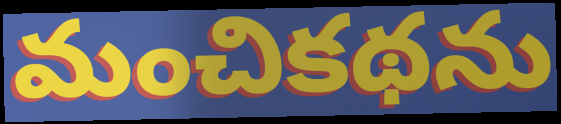
మంచికథను